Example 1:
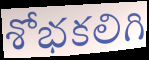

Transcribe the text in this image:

శోభకలిగి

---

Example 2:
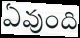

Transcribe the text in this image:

ఏవుంది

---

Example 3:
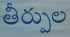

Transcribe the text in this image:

తీర్పుల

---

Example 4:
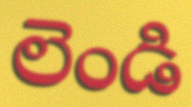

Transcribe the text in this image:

లెండి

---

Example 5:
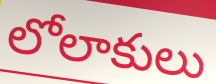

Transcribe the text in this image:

లోలాకులు